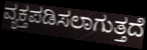
ವ್ಯಕ್ತಪಡಿಸಲಾಗುತ್ತದೆ